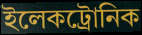
ইলেকট্রোনিক